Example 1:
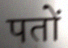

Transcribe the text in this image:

पतों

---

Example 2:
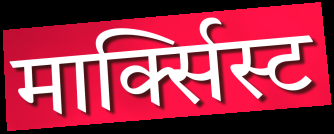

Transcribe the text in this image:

मार्क्सिस्ट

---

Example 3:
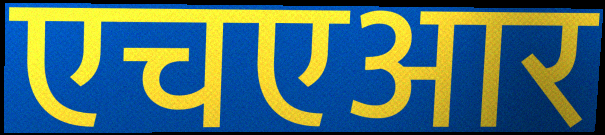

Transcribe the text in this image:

एचएआर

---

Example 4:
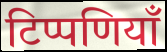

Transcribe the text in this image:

टिप्पणियाँ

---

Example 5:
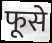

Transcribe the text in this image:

फूसे